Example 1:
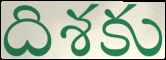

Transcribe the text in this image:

దిశకు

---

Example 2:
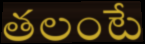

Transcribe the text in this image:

తలంటే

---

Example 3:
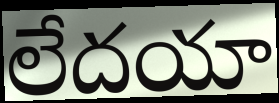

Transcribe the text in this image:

లేదయా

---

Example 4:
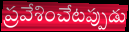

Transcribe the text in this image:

ప్రవేశించేటప్పుడు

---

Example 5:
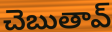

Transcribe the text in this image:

చెబుతావ్